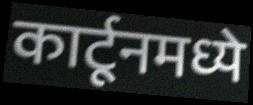
कार्टूनमध्ये